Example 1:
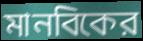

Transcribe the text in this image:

মানবিকের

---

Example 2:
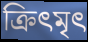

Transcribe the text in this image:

ক্রিৎমৃৎ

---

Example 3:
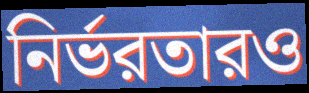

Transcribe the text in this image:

নির্ভরতারও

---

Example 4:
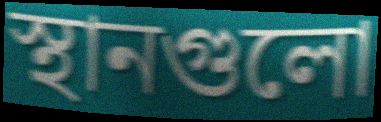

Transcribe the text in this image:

স্থানগুলো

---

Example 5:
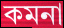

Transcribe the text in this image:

কমনা